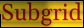
Subgrid